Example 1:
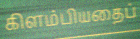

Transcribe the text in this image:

கிளம்பியதைப்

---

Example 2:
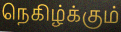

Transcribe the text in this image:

நெகிழ்க்கும்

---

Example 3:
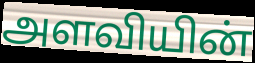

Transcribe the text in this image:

அளவியின்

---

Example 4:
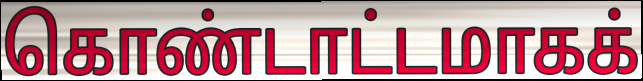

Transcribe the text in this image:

கொண்டாட்டமாகக்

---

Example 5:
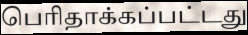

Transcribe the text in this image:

பெரிதாக்கப்பட்டது